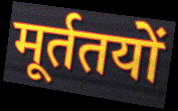
मूर्ततयों